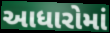
આધારોમાં